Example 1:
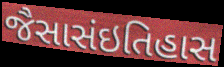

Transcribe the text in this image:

જૈસાસંઇતિહાસ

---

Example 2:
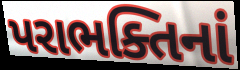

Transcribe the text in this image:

પરાભક્તિનાં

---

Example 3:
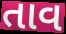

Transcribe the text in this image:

તાવ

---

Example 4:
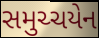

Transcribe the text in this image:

સમુચ્ચયેન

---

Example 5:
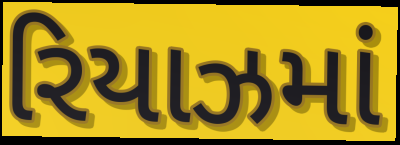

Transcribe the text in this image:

રિયાઝમાં